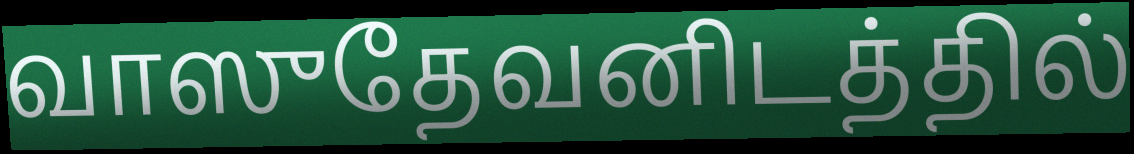
வாஸுதேவனிடத்தில்